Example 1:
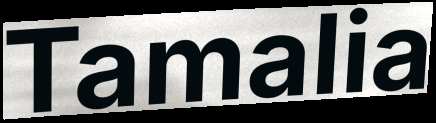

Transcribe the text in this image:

Tamalia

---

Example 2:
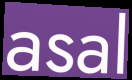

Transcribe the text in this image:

asal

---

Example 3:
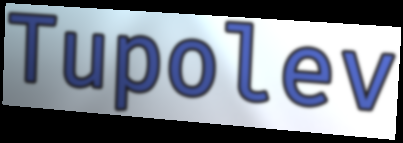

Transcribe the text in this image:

Tupolev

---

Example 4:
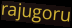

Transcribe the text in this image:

rajugoru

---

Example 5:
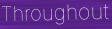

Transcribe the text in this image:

Throughout